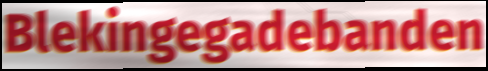
Blekingegadebanden